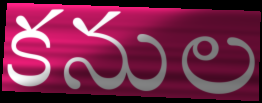
కనుల